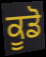
ਕੂਡੋ